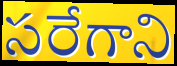
సరేగాని